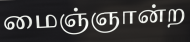
மைஞ்ஞான்ற